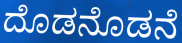
ದೊಡನೊಡನೆ